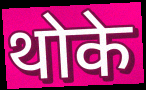
थोके